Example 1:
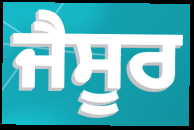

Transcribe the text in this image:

ਜੈਸੂਰ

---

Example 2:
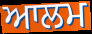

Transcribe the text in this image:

ਆਲਮ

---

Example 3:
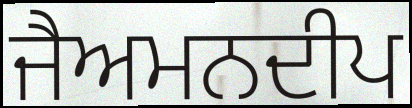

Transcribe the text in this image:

ਜੈਅਮਨਦੀਪ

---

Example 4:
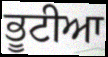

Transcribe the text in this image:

ਭੂਟੀਆ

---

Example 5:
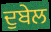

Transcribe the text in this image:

ਦੁਬੇਲ